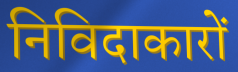
निविदाकारों